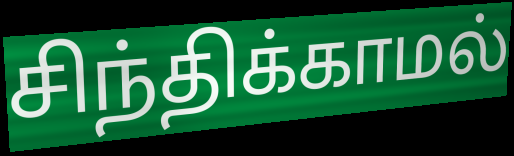
சிந்திக்காமல்